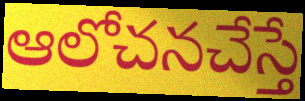
ఆలోచనచేస్తే